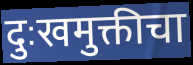
दुःखमुक्तीचा